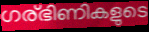
ഗര്ഭിണികളുടെ